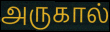
அருகால்